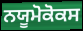
ਨਯੂਮੋਕੋਕਸ